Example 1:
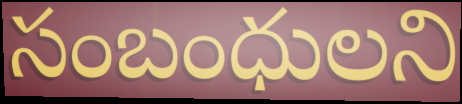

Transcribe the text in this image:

సంబంధులని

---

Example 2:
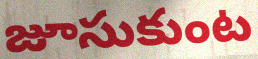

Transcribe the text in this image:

జూసుకుంట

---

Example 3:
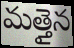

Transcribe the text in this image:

మత్తైన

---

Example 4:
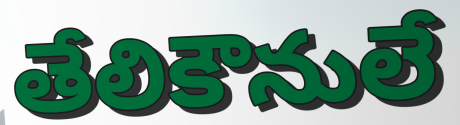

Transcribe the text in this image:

తేలికౌనులే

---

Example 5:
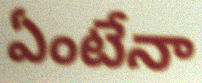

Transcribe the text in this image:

ఏంటేనా